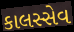
કાલસ્સેવ